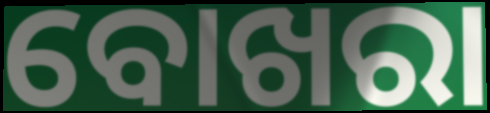
ବୋଖରା